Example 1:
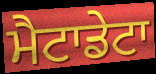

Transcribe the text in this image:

ਮੈਟਾਡੇਟਾ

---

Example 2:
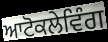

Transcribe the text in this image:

ਆਟੋਕਲੇਵਿੰਗ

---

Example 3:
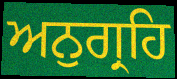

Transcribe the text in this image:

ਅਨੁਗ੍ਰਹਿ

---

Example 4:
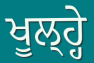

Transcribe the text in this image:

ਖੂਲ੍ਹ੍ਹੇ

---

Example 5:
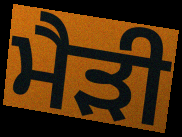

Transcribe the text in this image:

ਮੈੜੀ